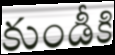
కుండీకి